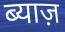
ब्याज़